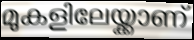
മുകളിലേയ്ക്കാണ്